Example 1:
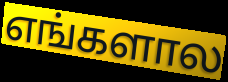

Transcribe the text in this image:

எங்களால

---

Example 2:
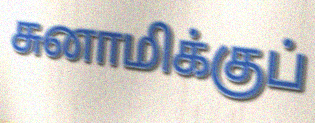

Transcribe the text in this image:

சுனாமிக்குப்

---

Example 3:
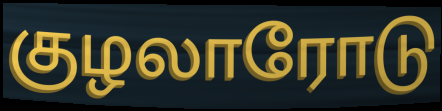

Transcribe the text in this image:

குழலாரோடு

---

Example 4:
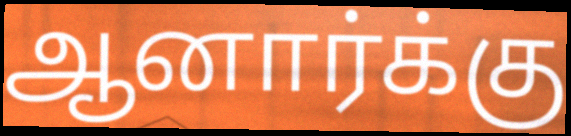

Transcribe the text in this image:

ஆனார்க்கு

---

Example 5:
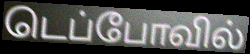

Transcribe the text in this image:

டெப்போவில்